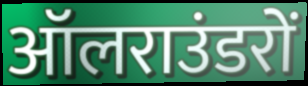
ऑलराउंडरों